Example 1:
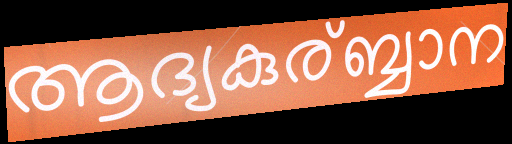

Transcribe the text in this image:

ആദ്യകുര്ബ്ബാന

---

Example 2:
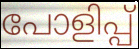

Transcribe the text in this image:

പോളിപ്പ്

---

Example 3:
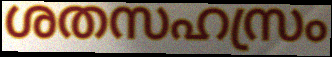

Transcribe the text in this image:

ശതസഹസ്രം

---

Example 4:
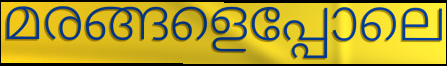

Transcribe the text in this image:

മരങ്ങളെപ്പോലെ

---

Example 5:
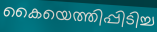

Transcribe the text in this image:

കൈയെത്തിപ്പിടിച്ച